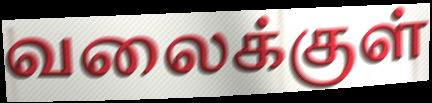
வலைக்குள்